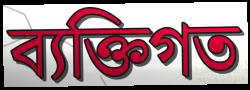
ব্যক্তিগত